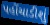
પહોંચાડીશું